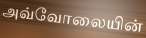
அவ்வோலையின்